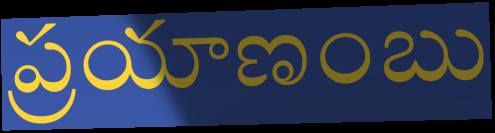
ప్రయాణంబు